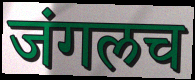
जंगलच